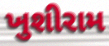
ખુશીરામ